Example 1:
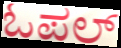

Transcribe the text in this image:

ಓಪಲ್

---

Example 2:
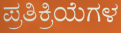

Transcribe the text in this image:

ಪ್ರತಿಕ್ರಿಯೆಗಳ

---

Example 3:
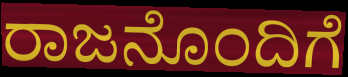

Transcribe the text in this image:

ರಾಜನೊಂದಿಗೆ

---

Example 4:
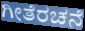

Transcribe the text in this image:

ಗೀತೆರಚನೆ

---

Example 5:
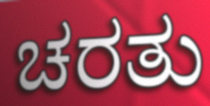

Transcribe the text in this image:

ಚರತು